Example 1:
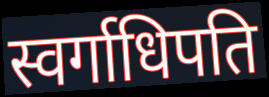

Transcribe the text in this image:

स्वर्गाधिपति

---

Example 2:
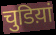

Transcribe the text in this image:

चुडिय़ां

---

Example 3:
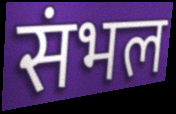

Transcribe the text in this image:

संभल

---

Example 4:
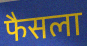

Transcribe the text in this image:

फैसला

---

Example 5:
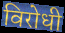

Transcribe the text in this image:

विरोधी